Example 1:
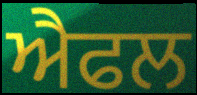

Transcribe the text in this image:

ਐਫਲ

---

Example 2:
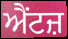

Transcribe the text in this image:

ਐਂਟਜ਼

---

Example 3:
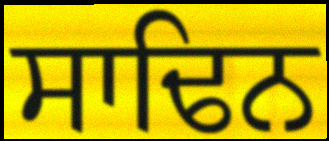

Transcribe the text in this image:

ਸਾਢਿਨ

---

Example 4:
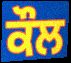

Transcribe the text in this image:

ਕੌਲ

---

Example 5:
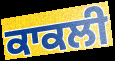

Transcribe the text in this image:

ਕਾਕਲੀ